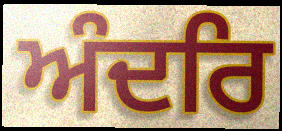
ਅੰਦਰਿ